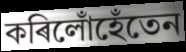
কৰিলোঁহেঁতেন